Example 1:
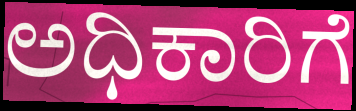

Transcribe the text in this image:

ಅಧಿಕಾರಿಗೆ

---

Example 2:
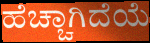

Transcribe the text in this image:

ಹೆಚ್ಚಾಗಿದೆಯೆ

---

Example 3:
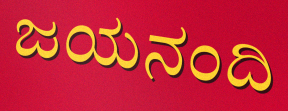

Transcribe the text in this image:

ಜಯನಂದಿ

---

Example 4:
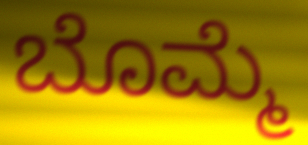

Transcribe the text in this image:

ಬೊಮ್ಮೆ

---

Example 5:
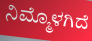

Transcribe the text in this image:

ನಿಮ್ಮೊಳಗಿದೆ